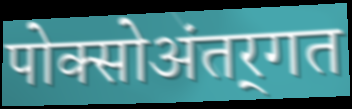
पोक्सोअंतर्गत